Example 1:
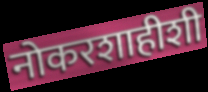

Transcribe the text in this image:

नोकरशाहीशी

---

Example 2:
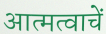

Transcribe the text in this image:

आत्मत्वाचें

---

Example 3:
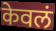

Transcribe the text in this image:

केवलं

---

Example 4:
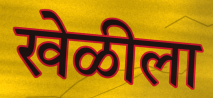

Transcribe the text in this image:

खेळीला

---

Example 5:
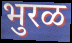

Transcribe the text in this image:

भुरळ